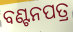
ବଣ୍ଟନପତ୍ର